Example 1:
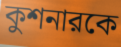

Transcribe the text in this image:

কুশনারকে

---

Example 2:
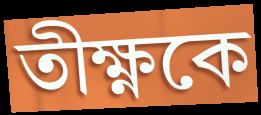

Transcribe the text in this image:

তীক্ষ্ণকে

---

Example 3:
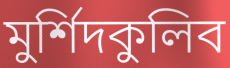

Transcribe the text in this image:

মুর্শিদকুলিব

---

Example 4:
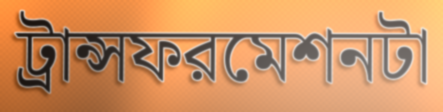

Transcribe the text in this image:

ট্রান্সফরমেশনটা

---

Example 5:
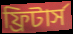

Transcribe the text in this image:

ফ্রিটার্স